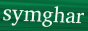
symghar